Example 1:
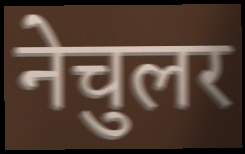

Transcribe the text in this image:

नेचुलर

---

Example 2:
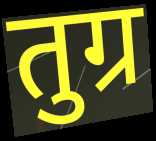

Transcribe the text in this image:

तुग्र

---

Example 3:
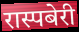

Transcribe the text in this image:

रास्पबेरी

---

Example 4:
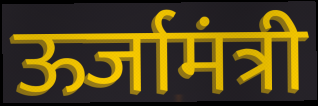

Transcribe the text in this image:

ऊर्जामंत्री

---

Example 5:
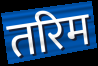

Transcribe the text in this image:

तरिम